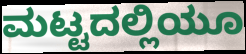
ಮಟ್ಟದಲ್ಲಿಯೂ